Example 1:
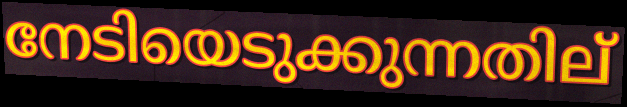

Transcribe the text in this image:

നേടിയെടുക്കുന്നതില്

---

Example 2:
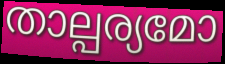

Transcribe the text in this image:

താല്പര്യമോ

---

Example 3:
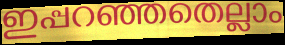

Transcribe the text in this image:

ഇപ്പറഞ്ഞതെല്ലാം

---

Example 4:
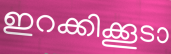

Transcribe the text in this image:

ഇറക്കിക്കൂടാ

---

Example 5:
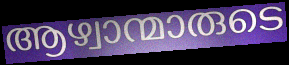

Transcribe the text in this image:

ആഴ്വാന്മാരുടെ